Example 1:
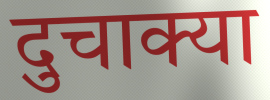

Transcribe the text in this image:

दुचाक्या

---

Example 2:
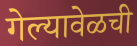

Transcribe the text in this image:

गेल्यावेळची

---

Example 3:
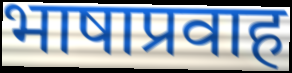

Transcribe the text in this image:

भाषाप्रवाह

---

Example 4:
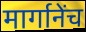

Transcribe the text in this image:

मार्गानेंच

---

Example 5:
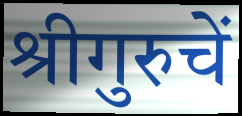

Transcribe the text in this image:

श्रीगुरुचें